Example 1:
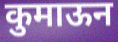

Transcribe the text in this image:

कुमाऊन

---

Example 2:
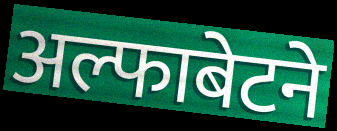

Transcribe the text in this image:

अल्फाबेटने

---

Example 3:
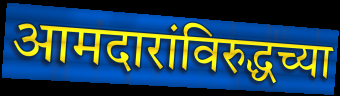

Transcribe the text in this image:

आमदारांविरुद्धच्या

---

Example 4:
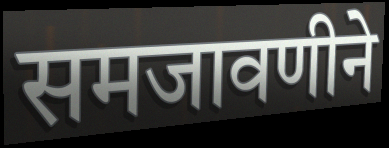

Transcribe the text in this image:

समजावणीने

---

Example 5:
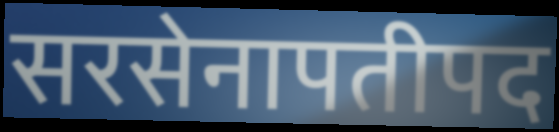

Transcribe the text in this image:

सरसेनापतीपद